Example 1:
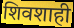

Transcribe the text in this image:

शिवशाही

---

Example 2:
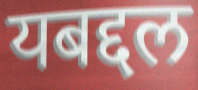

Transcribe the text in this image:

यबद्दल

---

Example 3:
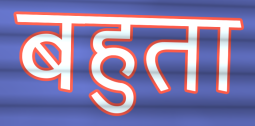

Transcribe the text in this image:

बहुता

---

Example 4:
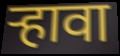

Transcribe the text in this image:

ऱ्हावा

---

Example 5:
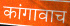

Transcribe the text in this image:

कांगावाच